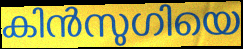
കിൻസുഗിയെ